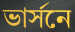
ভার্সনে